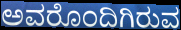
ಅವರೊಂದಿಗಿರುವ